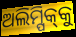
ଅଲିମ୍ପିକ୍‌କୁ